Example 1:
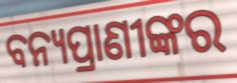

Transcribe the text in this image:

ବନ୍ୟପ୍ରାଣୀଙ୍କର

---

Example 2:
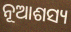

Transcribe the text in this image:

ନୂଆଶସ୍ୟ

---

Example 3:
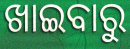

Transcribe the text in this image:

ଖାଇବାରୁ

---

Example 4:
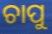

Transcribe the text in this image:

ଚାପୁ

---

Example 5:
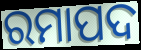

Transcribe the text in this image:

ରମାପଦ